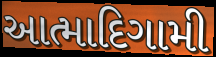
આત્માદિગામી